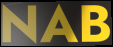
NAB